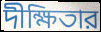
দীক্ষিতার